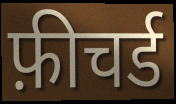
फ़ीचर्ड